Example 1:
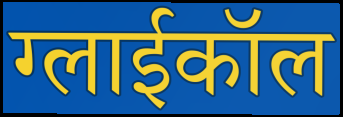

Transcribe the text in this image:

ग्लाईकॉल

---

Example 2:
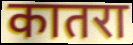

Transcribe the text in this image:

कातरा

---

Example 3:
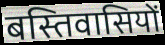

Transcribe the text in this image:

बस्तिवासियों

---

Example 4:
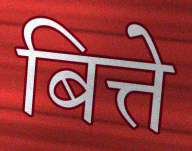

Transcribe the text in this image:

बित्ते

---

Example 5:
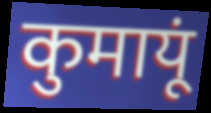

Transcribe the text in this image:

कुमायूं